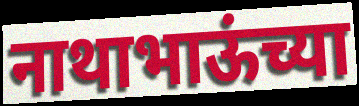
नाथाभाऊंच्या